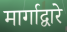
मार्गाद्वारे